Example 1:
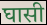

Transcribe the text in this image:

घासी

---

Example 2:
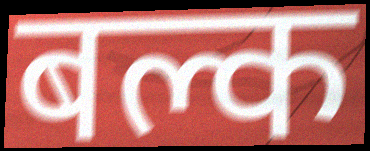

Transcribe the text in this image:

बल्क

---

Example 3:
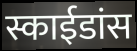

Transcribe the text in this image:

स्काईडांस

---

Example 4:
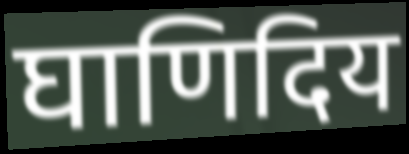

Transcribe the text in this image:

घाणिदिय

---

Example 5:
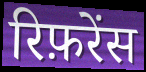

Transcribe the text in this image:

रिफ़रेंस